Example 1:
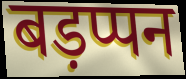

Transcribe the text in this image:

बड़प्पन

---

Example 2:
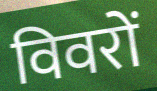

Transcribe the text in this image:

विवरों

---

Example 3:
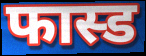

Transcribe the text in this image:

फास्ड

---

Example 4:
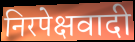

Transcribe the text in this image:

निरपेक्षवादी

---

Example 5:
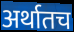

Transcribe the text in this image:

अर्थातच